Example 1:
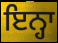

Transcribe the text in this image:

ਇਨ੍ਹਾ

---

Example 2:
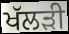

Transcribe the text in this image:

ਖੱਲੜੀ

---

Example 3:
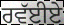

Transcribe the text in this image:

ਰਵੱਈਏ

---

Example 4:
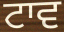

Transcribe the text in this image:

ਟਾਵ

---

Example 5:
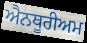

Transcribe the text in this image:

ਐਨਥੂਰੀਅਮ